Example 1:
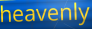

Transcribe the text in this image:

heavenly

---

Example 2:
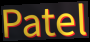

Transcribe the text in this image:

Patel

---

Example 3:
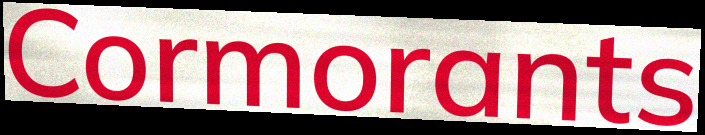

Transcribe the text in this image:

Cormorants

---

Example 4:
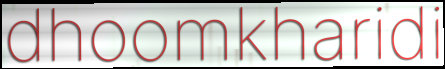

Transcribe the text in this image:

dhoomkharidi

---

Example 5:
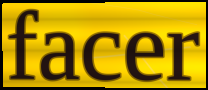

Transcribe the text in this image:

facer